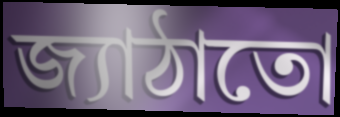
জ্যাঠাতো